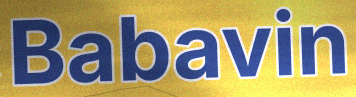
Babavin